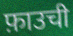
फ़ाउची